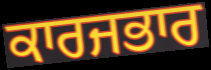
ਕਾਰਜਭਾਰ